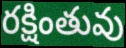
రక్షింతువు